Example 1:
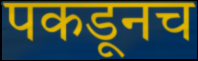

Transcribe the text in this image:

पकडूनच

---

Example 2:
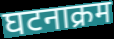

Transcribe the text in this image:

घटनाक्रम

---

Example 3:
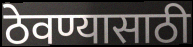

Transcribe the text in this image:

ठेवण्यासाठी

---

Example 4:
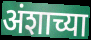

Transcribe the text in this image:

अंशाच्या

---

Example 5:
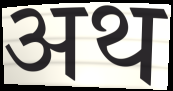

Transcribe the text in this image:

अथ